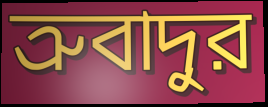
ত্রুবাদুর